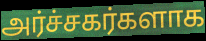
அர்ச்சகர்களாக